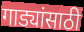
गाड्यांसाठी